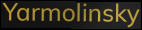
Yarmolinsky